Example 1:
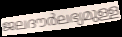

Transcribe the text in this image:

ജലദൗർലഭ്യമുള്ള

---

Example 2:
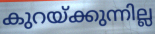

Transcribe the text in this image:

കുറയ്ക്കുന്നില്ല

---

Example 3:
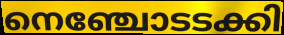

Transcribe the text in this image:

നെഞ്ചോടടക്കി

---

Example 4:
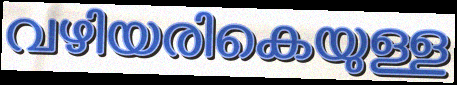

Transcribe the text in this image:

വഴിയരികെയുള്ള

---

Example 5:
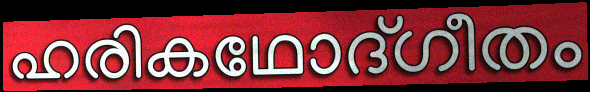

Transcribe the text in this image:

ഹരികഥോദ്ഗീതം